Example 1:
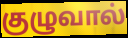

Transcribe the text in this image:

குழுவால்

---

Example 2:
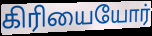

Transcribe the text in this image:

கிரியையோர்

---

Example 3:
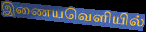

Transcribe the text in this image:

இணையவெளியில்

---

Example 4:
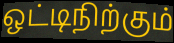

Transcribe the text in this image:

ஒட்டிநிற்கும்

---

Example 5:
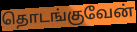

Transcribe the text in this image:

தொடங்குவேன்